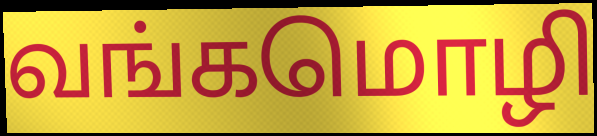
வங்கமொழி